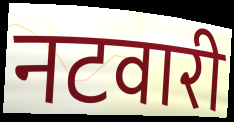
नटवारी